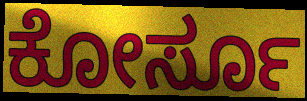
ಕೋರ್ಸೂ